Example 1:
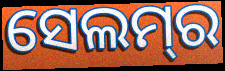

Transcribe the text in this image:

ସେଲମ୍‌ର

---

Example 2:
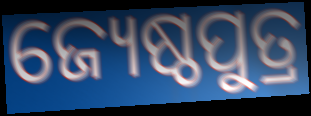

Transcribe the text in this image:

ଜ୍ୟେଷ୍ଠପୁତ୍ର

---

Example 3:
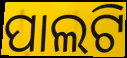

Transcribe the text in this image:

ପାଲଟି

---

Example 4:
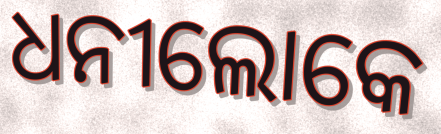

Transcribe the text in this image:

ଧନୀଲୋକେ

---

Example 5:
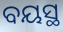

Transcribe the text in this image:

ବୟସ୍ଥ